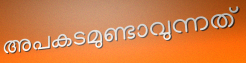
അപകടമുണ്ടാവുന്നത്